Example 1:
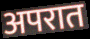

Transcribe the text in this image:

अपरात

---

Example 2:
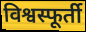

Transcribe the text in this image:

विश्वस्फूर्ती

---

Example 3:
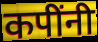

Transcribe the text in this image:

कपींनी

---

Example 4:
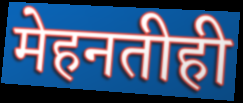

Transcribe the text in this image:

मेहनतीही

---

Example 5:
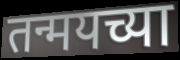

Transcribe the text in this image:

तन्मयच्या